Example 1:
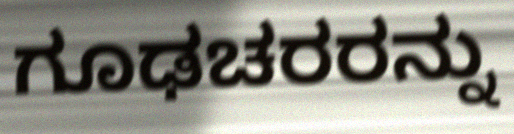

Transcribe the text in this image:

ಗೂಢಚರರನ್ನು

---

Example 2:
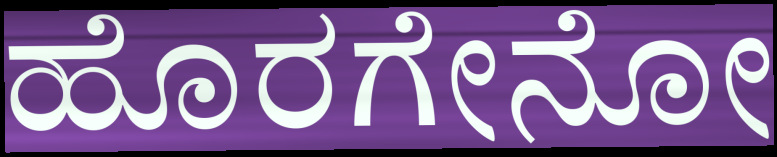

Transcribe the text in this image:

ಹೊರಗೇನೋ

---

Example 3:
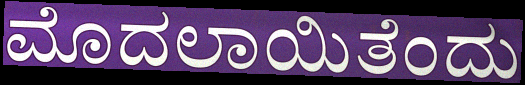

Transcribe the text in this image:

ಮೊದಲಾಯಿತೆಂದು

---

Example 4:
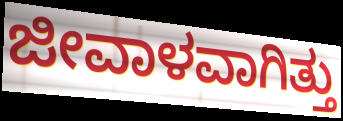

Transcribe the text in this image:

ಜೀವಾಳವಾಗಿತ್ತು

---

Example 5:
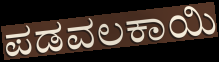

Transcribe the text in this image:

ಪಡವಲಕಾಯಿ